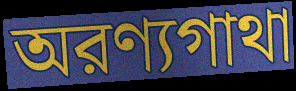
অরণ্যগাথা